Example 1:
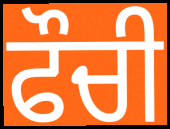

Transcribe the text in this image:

ਫੌਚੀ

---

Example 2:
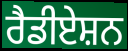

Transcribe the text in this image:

ਰੈਡੀਏਸ਼ਨ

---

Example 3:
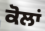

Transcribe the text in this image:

ਕੋਲਾਂ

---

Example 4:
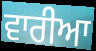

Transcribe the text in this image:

ਵਾਰੀਆ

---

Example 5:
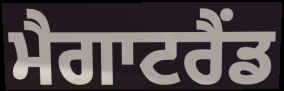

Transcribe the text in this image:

ਮੈਗਾਟਰੈਂਡ